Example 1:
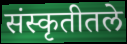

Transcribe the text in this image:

संस्कृतीतले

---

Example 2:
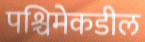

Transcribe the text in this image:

पश्चिमेकडील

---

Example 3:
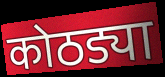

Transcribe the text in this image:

कोठड्या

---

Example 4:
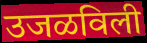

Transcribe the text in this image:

उजळविली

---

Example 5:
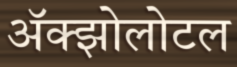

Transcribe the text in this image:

ॲक्झोलोटल